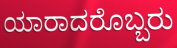
ಯಾರಾದರೊಬ್ಬರು